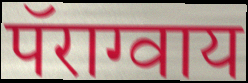
पॅराग्वाय